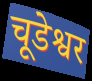
चूडेश्वर